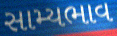
સામ્યભાવ